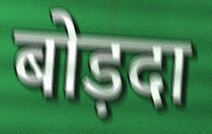
बोड़दा